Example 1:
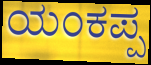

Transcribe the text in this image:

ಯಂಕಪ್ಪ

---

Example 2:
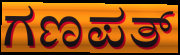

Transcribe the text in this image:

ಗಣಪತ್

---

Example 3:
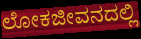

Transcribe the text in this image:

ಲೋಕಜೀವನದಲ್ಲಿ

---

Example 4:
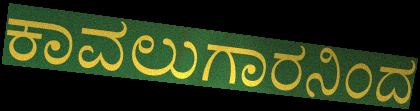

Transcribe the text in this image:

ಕಾವಲುಗಾರನಿಂದ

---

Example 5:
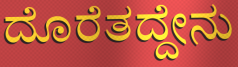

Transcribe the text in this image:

ದೊರೆತದ್ದೇನು